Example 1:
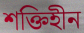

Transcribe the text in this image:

শক্তিহীন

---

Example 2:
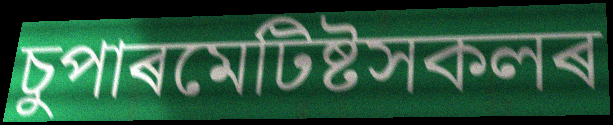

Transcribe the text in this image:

চুপাৰমেটিষ্টসকলৰ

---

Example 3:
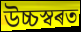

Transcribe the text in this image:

উচ্চস্বৰত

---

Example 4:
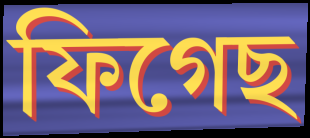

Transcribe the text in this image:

ফিগেছ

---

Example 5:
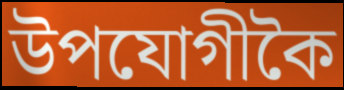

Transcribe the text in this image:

উপযোগীকৈ